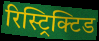
रिस्ट्रिक्टिड